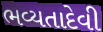
ભવ્યતાદેવી